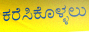
ಕರೆಸಿಕೊಳ್ಳಲು